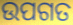
ଉପଗତ